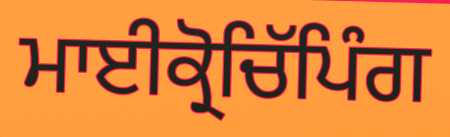
ਮਾਈਕ੍ਰੋਚਿੱਪਿੰਗ